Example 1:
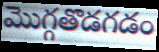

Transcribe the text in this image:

మొగ్గతొడగడం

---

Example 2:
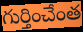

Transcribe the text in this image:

గుర్తించేంత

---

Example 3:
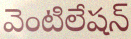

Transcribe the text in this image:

వెంటిలేషన్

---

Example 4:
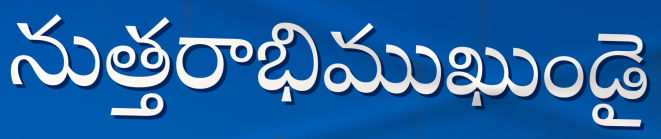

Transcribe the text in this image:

నుత్తరాభిముఖుండై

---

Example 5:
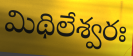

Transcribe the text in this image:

మిథిలేశ్వరః